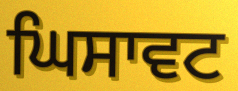
ਘਿਸਾਵਟ